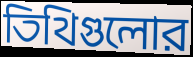
তিথিগুলোর